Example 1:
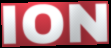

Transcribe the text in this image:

ION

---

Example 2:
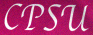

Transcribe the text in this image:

CPSU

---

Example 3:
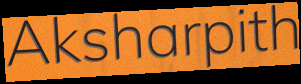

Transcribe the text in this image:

Aksharpith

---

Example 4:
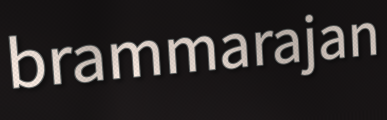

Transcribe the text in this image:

brammarajan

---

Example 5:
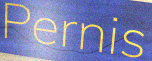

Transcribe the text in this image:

Pernis